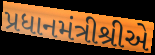
પ્રધાનમંત્રીશ્રીએ